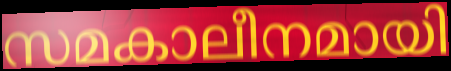
സമകാലീനമായി